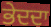
ਭੇਦਦਾ